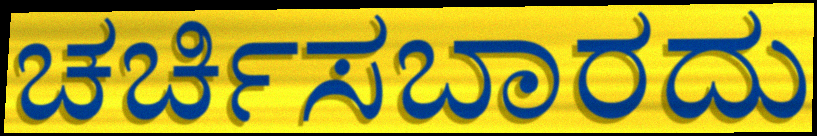
ಚರ್ಚಿಸಬಾರದು